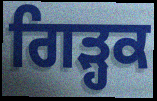
ਗਿੜ੍ਹਕ